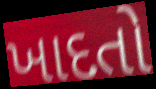
ખાદતો